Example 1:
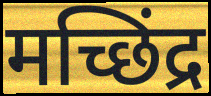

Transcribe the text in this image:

मच्छिंद्र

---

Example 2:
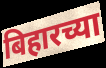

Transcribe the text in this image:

बिहारच्या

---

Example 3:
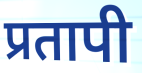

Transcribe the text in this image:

प्रतापी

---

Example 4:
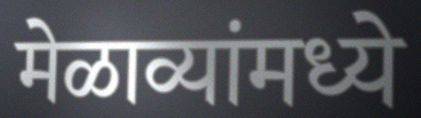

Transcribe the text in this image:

मेळाव्यांमध्ये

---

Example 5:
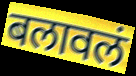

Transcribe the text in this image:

बलावलं